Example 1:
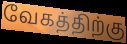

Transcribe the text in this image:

வேகத்திற்கு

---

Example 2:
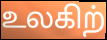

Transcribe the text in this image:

உலகிற்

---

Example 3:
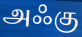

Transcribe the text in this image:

அஃகு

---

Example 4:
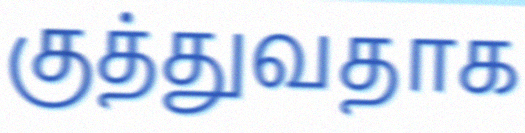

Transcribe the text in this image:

குத்துவதாக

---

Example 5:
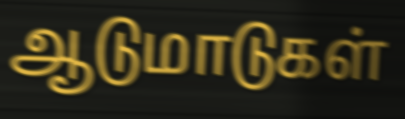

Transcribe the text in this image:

ஆடுமாடுகள்